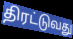
திரட்டுவது